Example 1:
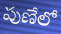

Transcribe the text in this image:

పుణేలో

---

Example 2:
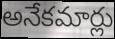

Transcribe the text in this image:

అనేకమార్లు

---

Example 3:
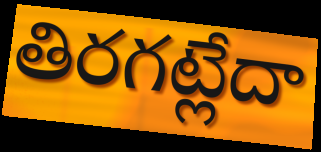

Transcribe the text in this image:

తిరగట్లేదా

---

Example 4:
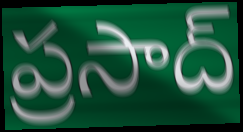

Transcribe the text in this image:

ప్రసాద్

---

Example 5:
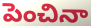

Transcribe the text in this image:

పెంచినా